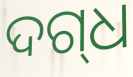
ଦଗ୍‌ଧ